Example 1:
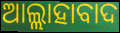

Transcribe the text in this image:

ଆଲ୍ଲାହାବାଦ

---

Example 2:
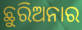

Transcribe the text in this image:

ଛୁରିଅନାର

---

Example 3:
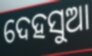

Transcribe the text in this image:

ଦେହସୁଆ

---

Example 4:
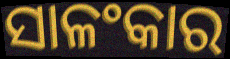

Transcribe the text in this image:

ସାଳଂକାର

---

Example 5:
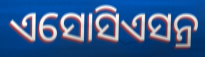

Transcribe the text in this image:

ଏସୋସିଏସନ୍ର